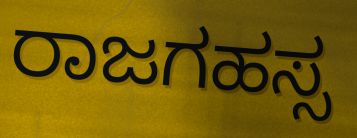
ರಾಜಗಹಸ್ಸ